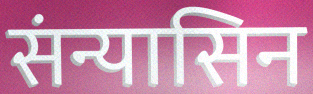
संन्यासिन